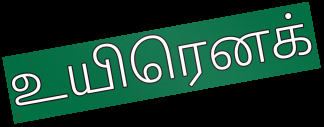
உயிரெனக்